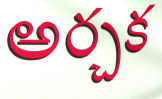
అర్చక